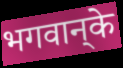
भगवान्‌के